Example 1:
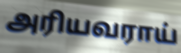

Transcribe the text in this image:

அரியவராய்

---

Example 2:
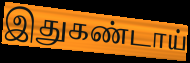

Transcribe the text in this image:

இதுகண்டாய்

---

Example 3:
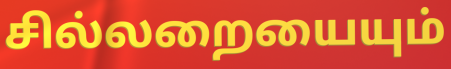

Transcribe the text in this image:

சில்லறையையும்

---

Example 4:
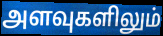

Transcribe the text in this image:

அளவுகளிலும்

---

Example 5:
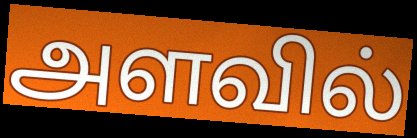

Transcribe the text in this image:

அளவில்